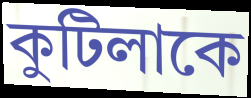
কুটিলাকে